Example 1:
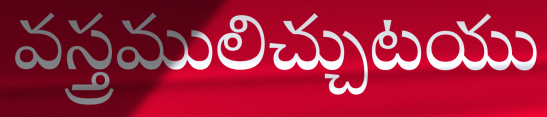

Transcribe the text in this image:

వస్త్రములిచ్చుటయు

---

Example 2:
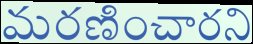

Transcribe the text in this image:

మరణించారని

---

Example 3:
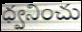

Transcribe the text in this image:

ధ్వనించు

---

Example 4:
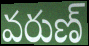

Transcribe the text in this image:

వరుణ్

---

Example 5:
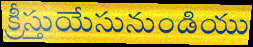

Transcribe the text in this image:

క్రీస్తుయేసునుండియు